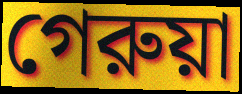
গেরুয়া